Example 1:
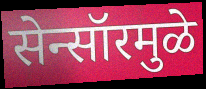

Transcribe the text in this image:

सेन्सॉरमुळे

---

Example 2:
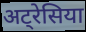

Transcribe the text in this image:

अट्रेसिया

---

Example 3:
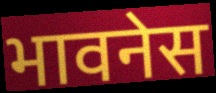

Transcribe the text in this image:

भावनेस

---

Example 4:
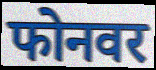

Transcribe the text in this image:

फोनवर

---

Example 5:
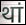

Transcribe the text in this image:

थां